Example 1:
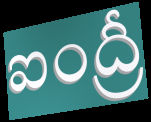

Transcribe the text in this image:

ఐంద్రీ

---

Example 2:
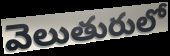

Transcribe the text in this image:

వెలుతురులో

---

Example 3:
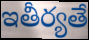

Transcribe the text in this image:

ఇతీర్యతే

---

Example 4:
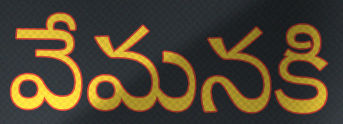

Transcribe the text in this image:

వేమనకి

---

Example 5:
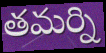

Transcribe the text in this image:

తమర్ని